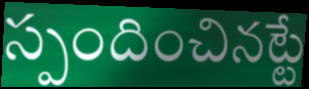
స్పందించినట్టే